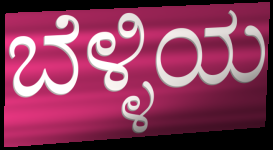
ಬೆಳ್ಳಿಯ